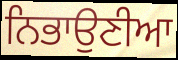
ਨਿਭਾਉਣੀਆ